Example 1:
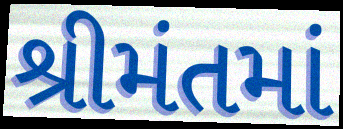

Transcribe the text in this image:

શ્રીમંતમાં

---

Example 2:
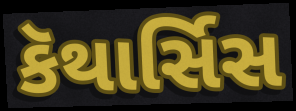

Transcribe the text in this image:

કૅથાર્સિસ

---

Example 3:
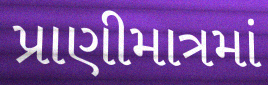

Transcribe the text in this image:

પ્રાણીમાત્રમાં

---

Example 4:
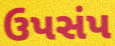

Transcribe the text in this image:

ઉપસંપ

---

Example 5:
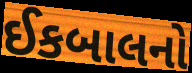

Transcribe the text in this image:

ઈકબાલનો